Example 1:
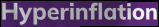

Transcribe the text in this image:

Hyperinflation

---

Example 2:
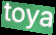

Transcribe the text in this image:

toya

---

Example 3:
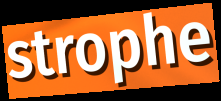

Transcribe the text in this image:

strophe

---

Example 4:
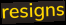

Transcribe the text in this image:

resigns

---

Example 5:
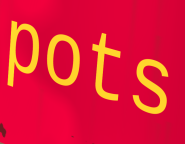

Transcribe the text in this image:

pots